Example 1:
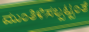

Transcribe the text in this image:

ಮುಂತಿಳಿಸಲ್ಪಟ್ಟಂತೆ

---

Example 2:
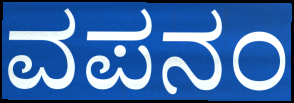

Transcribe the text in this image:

ವಪನಂ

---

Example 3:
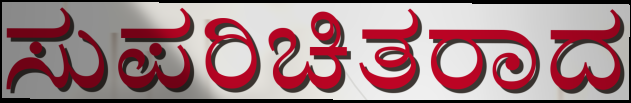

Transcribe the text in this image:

ಸುಪರಿಚಿತರಾದ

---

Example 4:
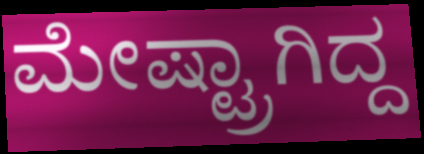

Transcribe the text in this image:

ಮೇಷ್ಟ್ರಾಗಿದ್ದ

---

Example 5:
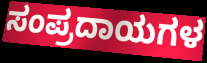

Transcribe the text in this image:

ಸಂಪ್ರದಾಯಗಳ